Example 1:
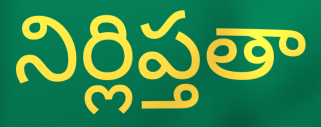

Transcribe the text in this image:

నిర్లిప్తతా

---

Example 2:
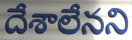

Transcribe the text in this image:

దేశాలేనని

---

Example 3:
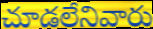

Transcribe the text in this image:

చూడలేనివారు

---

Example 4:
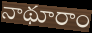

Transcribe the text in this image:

నాథూరాం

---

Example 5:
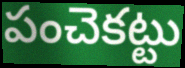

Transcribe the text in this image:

పంచెకట్టు